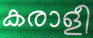
കരാളീ